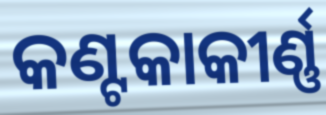
କଣ୍ଟକାକୀର୍ଣ୍ଣ